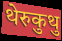
थेरुकुथु